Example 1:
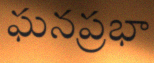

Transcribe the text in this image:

ఘనప్రభా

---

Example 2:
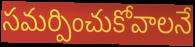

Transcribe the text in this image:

సమర్పించుకోవాలనే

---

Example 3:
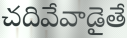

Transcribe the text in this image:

చదివేవాడైతే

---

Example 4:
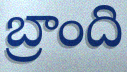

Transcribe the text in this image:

బ్రాంది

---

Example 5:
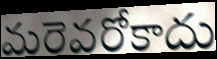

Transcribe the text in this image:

మరెవరోకాదు